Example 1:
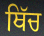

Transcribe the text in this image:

ਥਿੱਚ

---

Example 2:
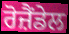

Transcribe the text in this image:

ਰੋਜ਼ੈਂਡੇਲ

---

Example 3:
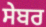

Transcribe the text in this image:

ਸੇਬਰ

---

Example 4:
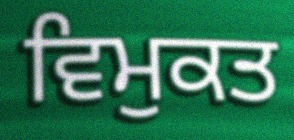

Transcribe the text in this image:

ਵਿਮੁਕਤ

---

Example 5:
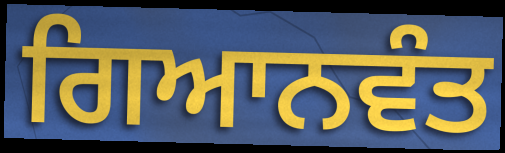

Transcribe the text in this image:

ਗਿਆਨਵੰਤ